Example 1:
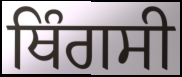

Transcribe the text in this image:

ਥਿੰਗਸੀ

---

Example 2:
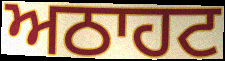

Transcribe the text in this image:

ਅਠਾਹਟ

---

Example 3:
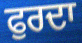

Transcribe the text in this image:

ਫੁਰਦਾ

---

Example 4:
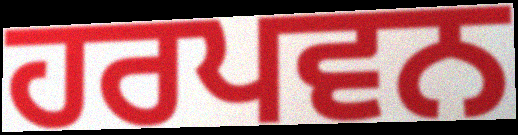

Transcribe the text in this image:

ਹਰਪਵਨ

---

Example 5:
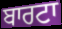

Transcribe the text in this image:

ਬਾਰਟਾ